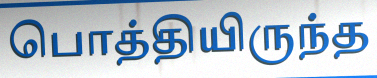
பொத்தியிருந்த